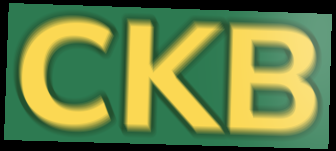
CKB